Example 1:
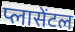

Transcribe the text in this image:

प्लासेंटल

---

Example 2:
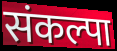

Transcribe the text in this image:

संकल्पा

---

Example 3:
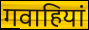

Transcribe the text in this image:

गवाहियां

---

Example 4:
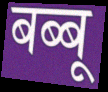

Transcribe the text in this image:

बब्बू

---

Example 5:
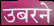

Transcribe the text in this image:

उबरने